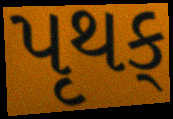
પૃથક્